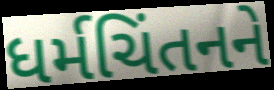
ધર્મચિંતનને